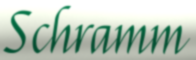
Schramm